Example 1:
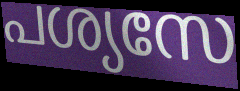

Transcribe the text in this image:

പശ്യസേ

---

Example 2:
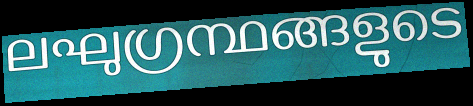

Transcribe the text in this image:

ലഘുഗ്രന്ഥങ്ങളുടെ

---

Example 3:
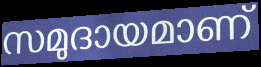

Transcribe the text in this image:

സമുദായമാണ്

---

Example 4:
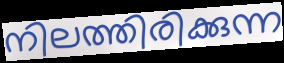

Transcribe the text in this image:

നിലത്തിരിക്കുന്ന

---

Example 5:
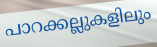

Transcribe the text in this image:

പാറക്കല്ലുകളിലും